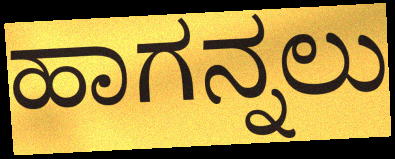
ಹಾಗನ್ನಲು